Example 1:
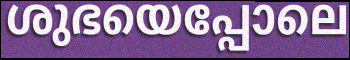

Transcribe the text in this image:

ശുഭയെപ്പോലെ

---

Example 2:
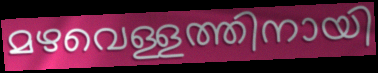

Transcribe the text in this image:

മഴവെള്ളത്തിനായി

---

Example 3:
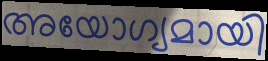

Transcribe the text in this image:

അയോഗ്യമായി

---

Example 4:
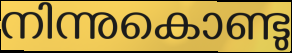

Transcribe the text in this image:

നിന്നുകൊണ്ടു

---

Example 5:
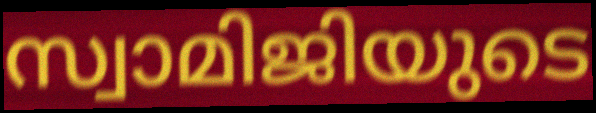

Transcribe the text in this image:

സ്വാമിജിയുടെ